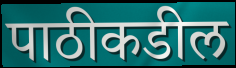
पाठीकडील